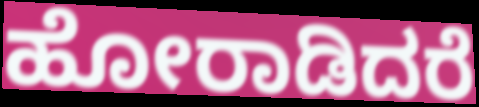
ಹೋರಾಡಿದರೆ